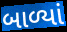
બાળ્યાં